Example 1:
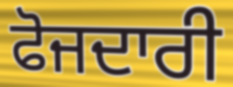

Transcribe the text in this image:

ਫੋਜਦਾਰੀ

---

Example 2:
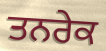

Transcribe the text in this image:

ਤਨਰੇਕ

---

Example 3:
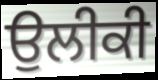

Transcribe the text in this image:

ਉਲੀਕੀ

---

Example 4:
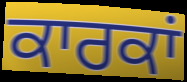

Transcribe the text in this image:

ਕਾਰਕਾਂ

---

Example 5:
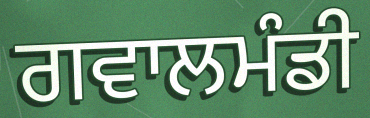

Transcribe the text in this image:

ਗਵਾਲਮੰਡੀ